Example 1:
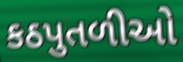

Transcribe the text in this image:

કઠપુતળીઓ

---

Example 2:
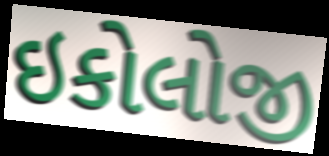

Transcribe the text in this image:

ઇકોલોજી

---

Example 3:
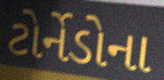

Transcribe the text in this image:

ટોર્નેડોના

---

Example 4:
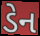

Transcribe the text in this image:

ડેન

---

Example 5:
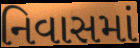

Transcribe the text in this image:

નિવાસમાં